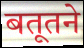
बतूतने